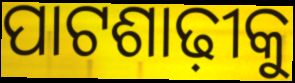
ପାଟଶାଢ଼ୀକୁ